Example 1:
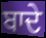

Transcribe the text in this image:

ਬਾਦੇ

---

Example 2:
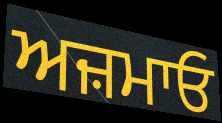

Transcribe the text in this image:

ਅਜ਼ਮਾਓ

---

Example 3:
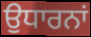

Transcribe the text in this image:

ਉਧਾਰਨਾਂ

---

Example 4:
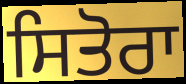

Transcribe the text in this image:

ਸਿਤੋਰਾ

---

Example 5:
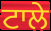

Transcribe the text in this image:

ਟਾਲੇ